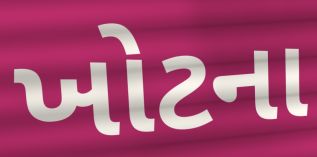
ખોટના